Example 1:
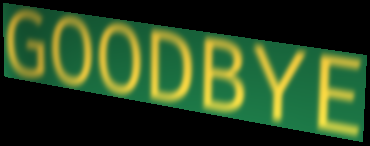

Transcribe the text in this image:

GOODBYE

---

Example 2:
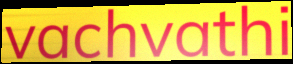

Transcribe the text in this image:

vachvathi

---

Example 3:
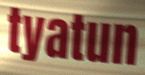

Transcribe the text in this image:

tyatun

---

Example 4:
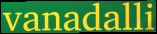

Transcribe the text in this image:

vanadalli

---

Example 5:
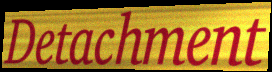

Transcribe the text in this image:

Detachment